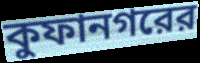
কুফানগরের